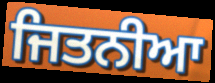
ਜਿਤਨੀਆ